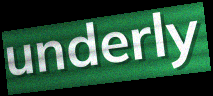
underly